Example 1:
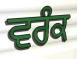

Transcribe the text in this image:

ਵਰੰਕ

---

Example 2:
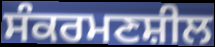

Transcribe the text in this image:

ਸੰਕਰਮਣਸ਼ੀਲ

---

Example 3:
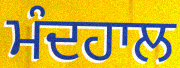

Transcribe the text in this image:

ਮੰਦਹਾਲ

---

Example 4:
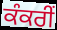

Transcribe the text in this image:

ਕੰਕਰੀਂ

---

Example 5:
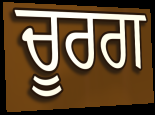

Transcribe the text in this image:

ਚੂਰਗ